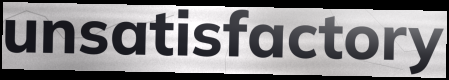
unsatisfactory